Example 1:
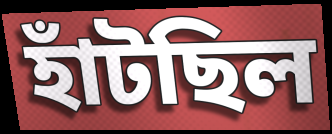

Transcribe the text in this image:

হাঁটছিল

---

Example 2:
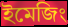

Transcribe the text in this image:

ইমেজিং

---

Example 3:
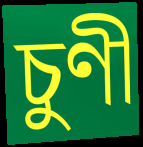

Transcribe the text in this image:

চুণী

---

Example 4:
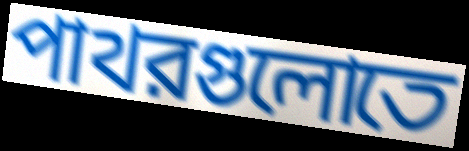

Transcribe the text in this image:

পাথরগুলোতে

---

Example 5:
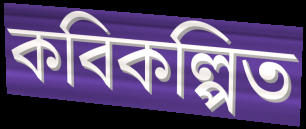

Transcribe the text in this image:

কবিকল্পিত